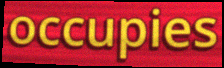
occupies